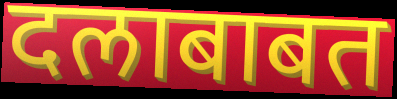
दलाबाबत